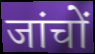
जांचों